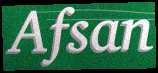
Afsan